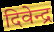
दिवेन्द्र